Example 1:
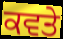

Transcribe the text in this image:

ਕਵਤੇ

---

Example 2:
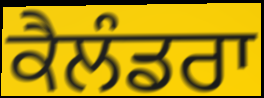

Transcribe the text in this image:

ਕੈਲੰਡਰਾ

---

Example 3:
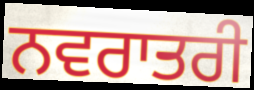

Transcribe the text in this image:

ਨਵਰਾਤਰੀ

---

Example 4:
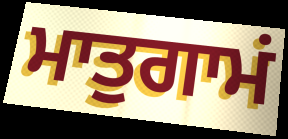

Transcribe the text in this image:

ਮਾਤੁਗਾਮਂ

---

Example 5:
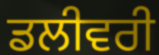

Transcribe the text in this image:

ਡਲੀਵਰੀ